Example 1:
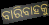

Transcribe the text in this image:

ବାରିବାହକୁ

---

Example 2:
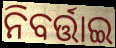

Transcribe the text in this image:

ନିବର୍ତ୍ତାଇ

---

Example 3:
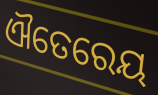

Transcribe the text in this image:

ଐତେରେୟ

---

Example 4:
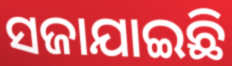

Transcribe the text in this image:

ସଜାଯାଇଛି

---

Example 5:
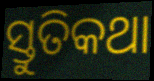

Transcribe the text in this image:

ସ୍ତୁତିକଥା